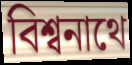
বিশ্বনাথে